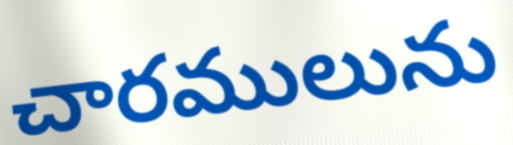
చారములును